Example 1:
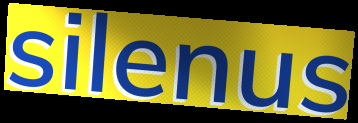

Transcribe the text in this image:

silenus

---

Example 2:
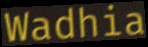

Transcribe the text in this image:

Wadhia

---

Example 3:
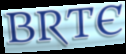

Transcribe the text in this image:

BRTE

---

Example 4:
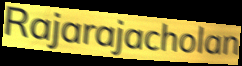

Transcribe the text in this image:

Rajarajacholan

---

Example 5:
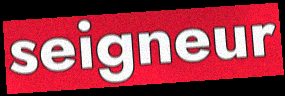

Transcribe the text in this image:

seigneur